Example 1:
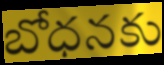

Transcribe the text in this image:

బోధనకు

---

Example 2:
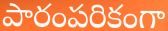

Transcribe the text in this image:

పారంపరికంగా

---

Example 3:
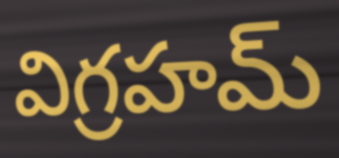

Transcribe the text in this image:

విగ్రహమ్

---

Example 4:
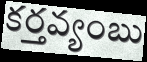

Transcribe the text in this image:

కర్తవ్యంబు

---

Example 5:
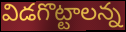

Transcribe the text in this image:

విడగొట్టాలన్న